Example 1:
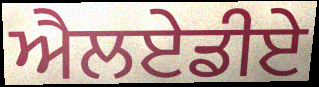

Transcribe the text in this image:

ਐਲਏਡੀਏ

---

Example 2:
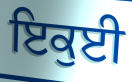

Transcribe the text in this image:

ਇਕੁਈ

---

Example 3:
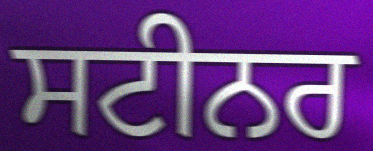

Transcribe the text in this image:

ਸਟੀਨਰ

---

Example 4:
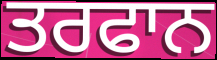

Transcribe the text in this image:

ਤਰਫਾਨ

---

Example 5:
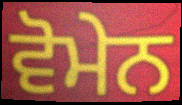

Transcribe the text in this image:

ਵੋਮੇਨ